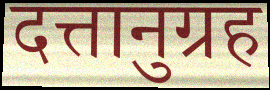
दत्तानुग्रह